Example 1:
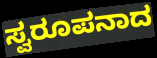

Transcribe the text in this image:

ಸ್ವರೂಪನಾದ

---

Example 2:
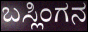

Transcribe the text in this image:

ಬಸ್ಲಿಂಗನ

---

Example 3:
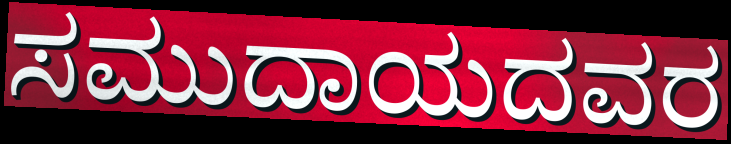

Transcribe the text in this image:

ಸಮುದಾಯದವರ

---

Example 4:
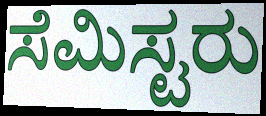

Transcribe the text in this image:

ಸೆಮಿಸ್ಟರು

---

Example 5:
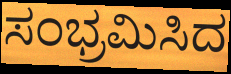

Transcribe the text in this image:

ಸಂಭ್ರಮಿಸಿದ